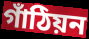
গাঁঠিয়ন